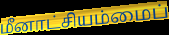
மீனாட்சியம்மைப்